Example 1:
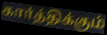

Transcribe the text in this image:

கார்த்திக்கும்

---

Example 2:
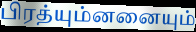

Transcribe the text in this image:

பிரத்யும்னனையும்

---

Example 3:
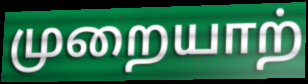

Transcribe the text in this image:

முறையாற்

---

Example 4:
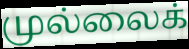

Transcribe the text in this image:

முல்லைக்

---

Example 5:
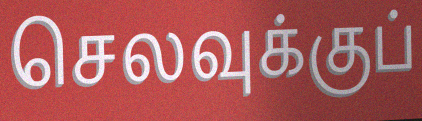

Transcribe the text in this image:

செலவுக்குப்